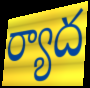
ర్యాద